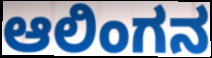
ಆಲಿಂಗನ